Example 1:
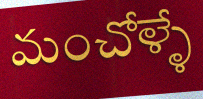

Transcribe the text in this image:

మంచోళ్ళే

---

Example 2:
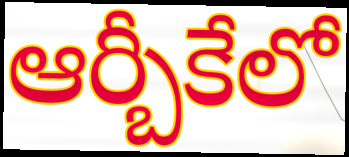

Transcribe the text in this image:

ఆర్బీకేలో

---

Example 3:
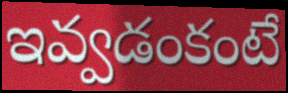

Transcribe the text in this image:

ఇవ్వడంకంటే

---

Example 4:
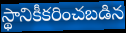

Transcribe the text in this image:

స్థానికీకరించబడిన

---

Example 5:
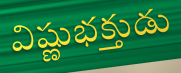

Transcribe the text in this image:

విష్ణుభక్తుడు